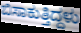
ಬಿಸಾಕುತ್ತಿದ್ದಳು